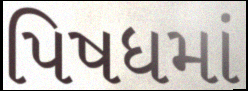
પિષધમાં